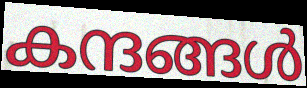
കന്ദങ്ങൾ